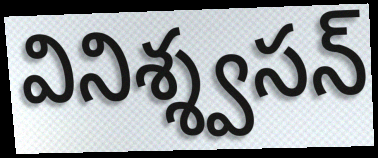
వినిశ్శ్వసన్